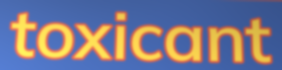
toxicant